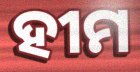
ହୀମ